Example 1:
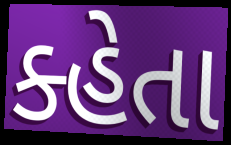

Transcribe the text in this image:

ક્હેતા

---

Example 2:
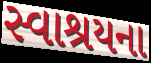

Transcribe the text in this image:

સ્વાશ્રયના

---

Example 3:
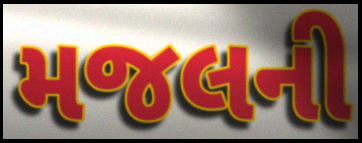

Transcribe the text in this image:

મજલની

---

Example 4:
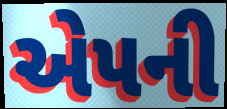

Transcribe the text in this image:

એપની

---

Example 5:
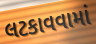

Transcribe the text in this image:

લટકાવવામાં